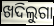
ଖଦିଲୁଗା